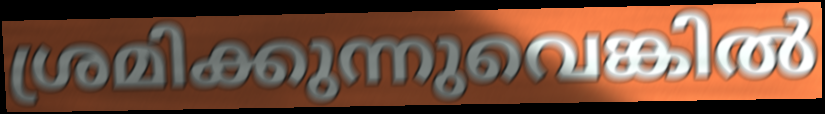
ശ്രമിക്കുന്നുവെങ്കിൽ